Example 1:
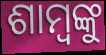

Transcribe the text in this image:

ଶାମ୍ବଙ୍କୁ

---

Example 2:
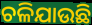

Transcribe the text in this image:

ଚଳିଯାଉଛି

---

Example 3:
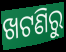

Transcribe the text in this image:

ଖଟଣିରୁ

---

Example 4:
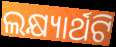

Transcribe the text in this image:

ଲକ୍ଷ୍ୟାର୍ଥଟି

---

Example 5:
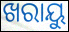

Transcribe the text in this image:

ଖରାୟୁ